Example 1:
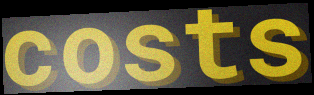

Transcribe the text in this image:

costs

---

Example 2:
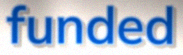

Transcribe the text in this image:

funded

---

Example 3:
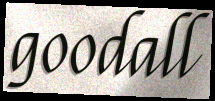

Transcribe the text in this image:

goodall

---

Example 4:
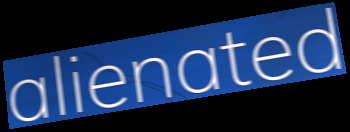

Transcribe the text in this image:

alienated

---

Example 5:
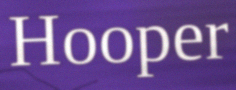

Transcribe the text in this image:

Hooper